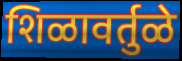
शिळावर्तुळे